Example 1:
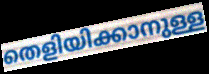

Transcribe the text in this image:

തെളിയിക്കാനുള്ള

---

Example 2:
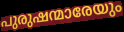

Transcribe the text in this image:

പുരുഷന്മാരേയും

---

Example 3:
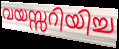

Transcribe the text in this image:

വയസ്സറിയിച്ച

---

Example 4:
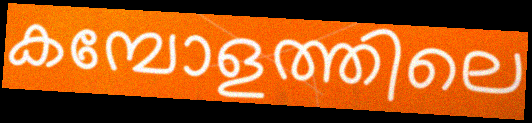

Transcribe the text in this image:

കമ്പോളത്തിലെ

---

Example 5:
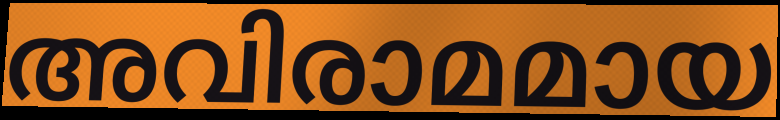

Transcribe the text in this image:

അവിരാമമായ